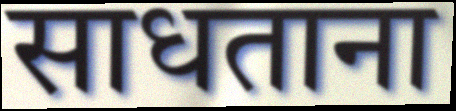
साधताना